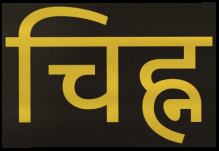
चिह्न